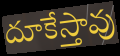
దూకేస్తావు